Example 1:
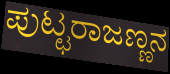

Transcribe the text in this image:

ಪುಟ್ಟರಾಜಣ್ಣನ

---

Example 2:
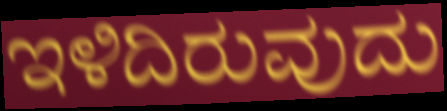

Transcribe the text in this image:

ಇಳಿದಿರುವುದು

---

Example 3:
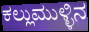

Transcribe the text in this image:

ಕಲ್ಲುಮುಳ್ಳಿನ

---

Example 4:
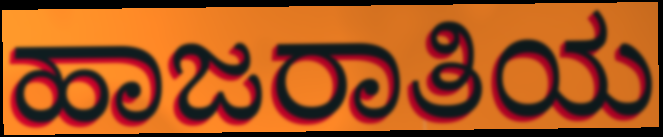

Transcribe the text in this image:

ಹಾಜರಾತಿಯ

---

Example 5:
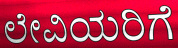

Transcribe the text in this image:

ಲೇವಿಯರಿಗೆ